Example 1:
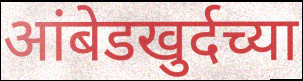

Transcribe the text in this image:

आंबेडखुर्दच्या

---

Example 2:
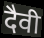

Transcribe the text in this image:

दैवी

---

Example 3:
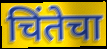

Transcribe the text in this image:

चिंतेचा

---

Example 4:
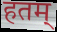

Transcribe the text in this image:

हतम्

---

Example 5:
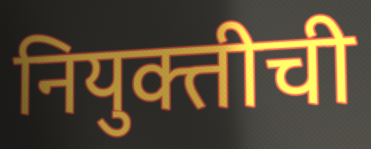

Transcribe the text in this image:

नियुक्तीची